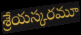
శ్రేయస్కరమూ